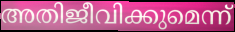
അതിജീവിക്കുമെന്ന്